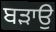
ਬਡ਼ਾਉ